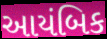
આયંબિક